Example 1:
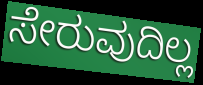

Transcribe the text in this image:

ಸೇರುವುದಿಲ್ಲ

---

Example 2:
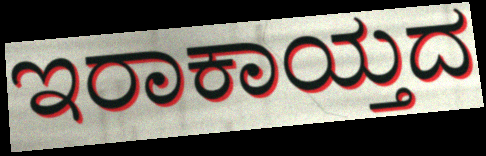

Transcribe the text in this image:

ಇರಾಕಾಯ್ತದ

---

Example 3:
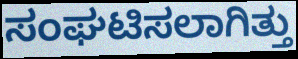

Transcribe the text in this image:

ಸಂಘಟಿಸಲಾಗಿತ್ತು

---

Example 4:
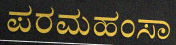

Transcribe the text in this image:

ಪರಮಹಂಸಾ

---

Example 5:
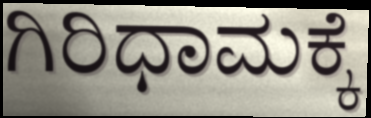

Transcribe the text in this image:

ಗಿರಿಧಾಮಕ್ಕೆ